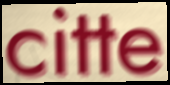
citte